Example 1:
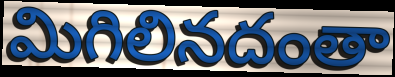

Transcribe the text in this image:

మిగిలినదంతా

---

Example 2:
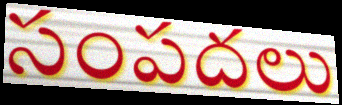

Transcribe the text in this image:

సంపదలు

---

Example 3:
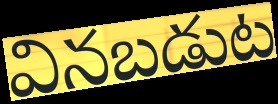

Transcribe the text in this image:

వినబడుట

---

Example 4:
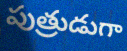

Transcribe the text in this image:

పుత్రుడుగా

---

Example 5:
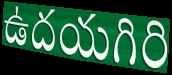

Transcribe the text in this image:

ఉదయగిరి